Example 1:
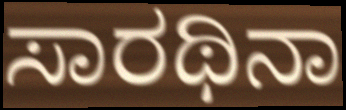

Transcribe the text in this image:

ಸಾರಥಿನಾ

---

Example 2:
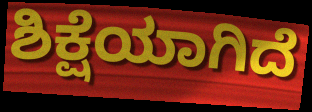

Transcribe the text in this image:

ಶಿಕ್ಷೆಯಾಗಿದೆ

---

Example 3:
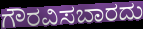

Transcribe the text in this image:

ಗೌರವಿಸಬಾರದು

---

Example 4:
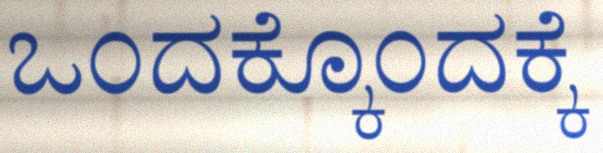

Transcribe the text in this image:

ಒಂದಕ್ಕೊಂದಕ್ಕೆ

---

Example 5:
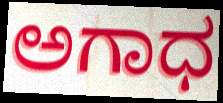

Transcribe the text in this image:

ಅಗಾಧ